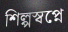
শিল্পস্বপ্নে